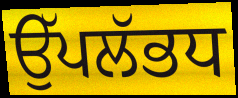
ਉੱਪਲੱਭਧ